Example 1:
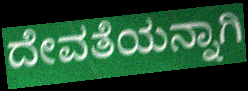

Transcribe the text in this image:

ದೇವತೆಯನ್ನಾಗಿ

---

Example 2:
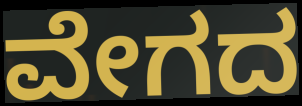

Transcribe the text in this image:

ವೇಗದ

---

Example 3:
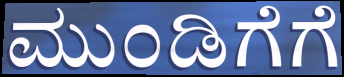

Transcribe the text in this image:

ಮುಂಡಿಗೆಗೆ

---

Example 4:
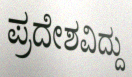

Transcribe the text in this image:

ಪ್ರದೇಶವಿದ್ದು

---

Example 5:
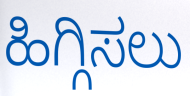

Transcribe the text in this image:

ಹಿಗ್ಗಿಸಲು